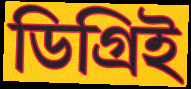
ডিগ্রিই